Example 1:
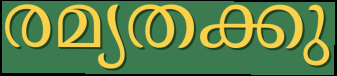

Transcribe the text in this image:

രമ്യതക്കു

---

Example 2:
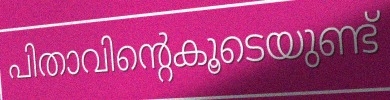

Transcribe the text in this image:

പിതാവിന്റെകൂടെയുണ്ട്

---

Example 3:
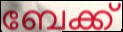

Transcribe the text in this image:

ബേക്ക്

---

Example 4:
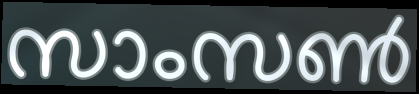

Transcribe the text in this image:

സാംസൺ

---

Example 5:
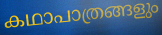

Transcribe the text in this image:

കഥാപാത്രങ്ങളും